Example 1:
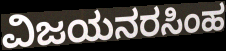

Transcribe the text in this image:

ವಿಜಯನರಸಿಂಹ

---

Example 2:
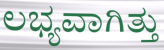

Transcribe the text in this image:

ಲಭ್ಯವಾಗಿತ್ತು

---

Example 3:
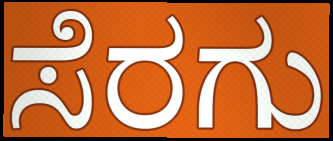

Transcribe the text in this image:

ಸೆರಗು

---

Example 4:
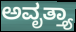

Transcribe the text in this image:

ಅವೃತ್ತ್ಯಾ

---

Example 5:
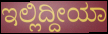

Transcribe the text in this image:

ಇಲ್ಲಿದ್ದೀಯಾ